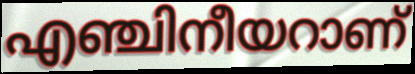
എഞ്ചിനീയറാണ്